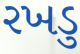
રખડુ